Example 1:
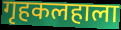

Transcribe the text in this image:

गृहकलहाला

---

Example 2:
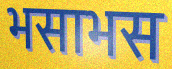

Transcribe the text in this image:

भसाभस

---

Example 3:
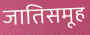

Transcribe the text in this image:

जातिसमूह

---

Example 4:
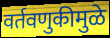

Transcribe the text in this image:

वर्तवणुकीमुळे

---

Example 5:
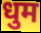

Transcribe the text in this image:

धुम